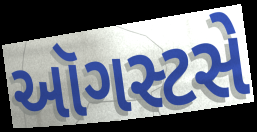
ઑગસ્ટસે